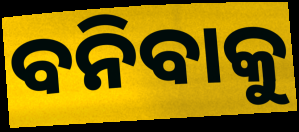
ବନିବାକୁ